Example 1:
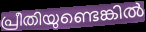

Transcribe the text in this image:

പ്രീതിയുണ്ടെങ്കിൽ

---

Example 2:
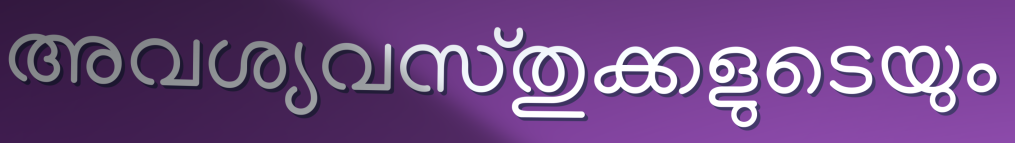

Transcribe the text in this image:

അവശ്യവസ്തുക്കളുടെയും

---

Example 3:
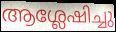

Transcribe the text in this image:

ആശ്ലേഷിച്ചു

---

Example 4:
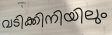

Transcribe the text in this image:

വടിക്കിനിയിലും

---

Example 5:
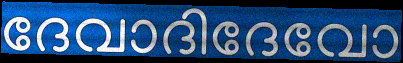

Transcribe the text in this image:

ദേവാദിദേവോ